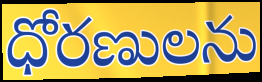
ధోరణులను